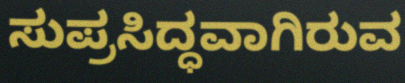
ಸುಪ್ರಸಿದ್ಧವಾಗಿರುವ